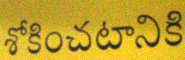
శోకించటానికి